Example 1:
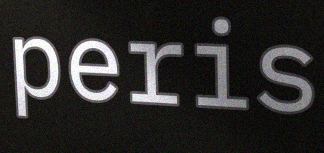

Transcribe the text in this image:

peris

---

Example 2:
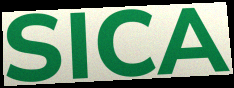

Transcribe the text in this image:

SICA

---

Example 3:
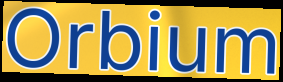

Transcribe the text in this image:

Orbium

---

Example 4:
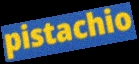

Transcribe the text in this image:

pistachio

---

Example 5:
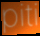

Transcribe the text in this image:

piti